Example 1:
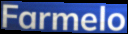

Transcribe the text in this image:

Farmelo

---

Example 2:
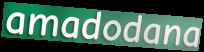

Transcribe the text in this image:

amadodana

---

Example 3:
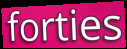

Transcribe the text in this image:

forties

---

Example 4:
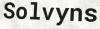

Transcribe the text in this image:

Solvyns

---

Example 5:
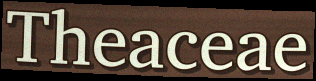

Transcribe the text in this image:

Theaceae